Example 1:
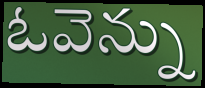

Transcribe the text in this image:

ఓవెన్ను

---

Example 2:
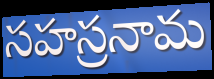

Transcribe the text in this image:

సహస్రనామ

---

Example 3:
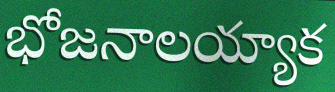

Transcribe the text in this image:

భోజనాలయ్యాక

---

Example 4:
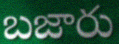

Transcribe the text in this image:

బజారు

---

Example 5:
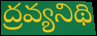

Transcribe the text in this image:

ద్రవ్యనిథి